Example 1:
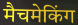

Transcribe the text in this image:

मैचमेकिंग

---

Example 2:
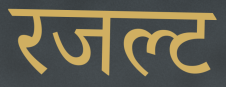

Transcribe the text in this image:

रजल्ट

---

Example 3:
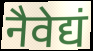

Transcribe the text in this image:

नैवेद्यं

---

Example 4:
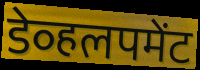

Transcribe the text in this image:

डेव्‍हलपमेंट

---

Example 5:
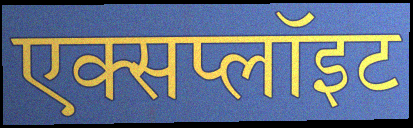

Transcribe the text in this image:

एक्सप्लॉइट